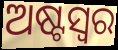
ଅଷ୍ଟସ୍ୱର